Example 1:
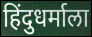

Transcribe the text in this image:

हिंदुधर्माला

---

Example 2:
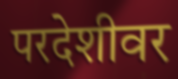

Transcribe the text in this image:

परदेशीवर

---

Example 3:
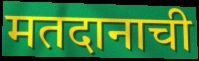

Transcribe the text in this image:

मतदानाची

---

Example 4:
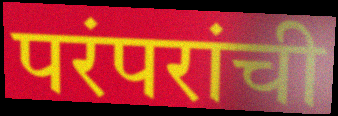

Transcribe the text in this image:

परंपरांची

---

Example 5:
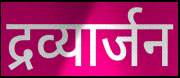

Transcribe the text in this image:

द्रव्यार्जन